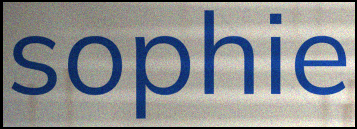
sophie